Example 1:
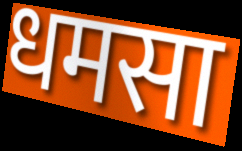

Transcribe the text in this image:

धमसा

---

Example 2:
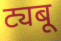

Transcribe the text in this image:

ट्यबू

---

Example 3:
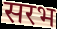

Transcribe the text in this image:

सरभ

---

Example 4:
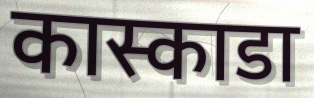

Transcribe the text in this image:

कास्काडा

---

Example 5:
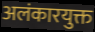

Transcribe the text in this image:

अलंकारयुक्त